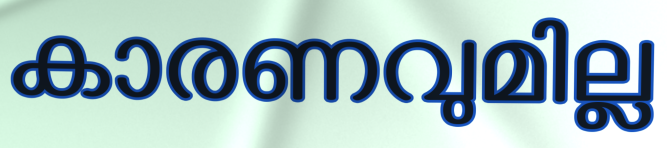
കാരണവുമില്ല